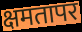
क्षमतापर